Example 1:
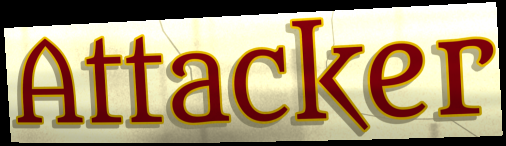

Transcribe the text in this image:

Attacker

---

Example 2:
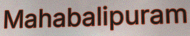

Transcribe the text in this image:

Mahabalipuram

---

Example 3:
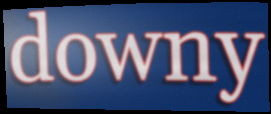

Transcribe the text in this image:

downy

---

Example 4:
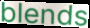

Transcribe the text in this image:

blends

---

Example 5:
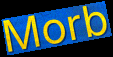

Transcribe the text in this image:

Morb